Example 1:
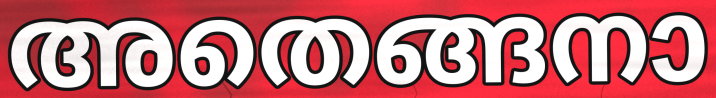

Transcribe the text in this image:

അതെങ്ങനാ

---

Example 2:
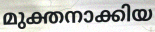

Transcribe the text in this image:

മുക്തനാക്കിയ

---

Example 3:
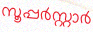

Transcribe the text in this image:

സൂപ്പർസ്റ്റാർ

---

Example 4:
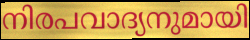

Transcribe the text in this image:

നിരപവാദ്യനുമായി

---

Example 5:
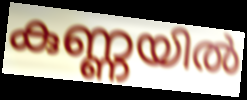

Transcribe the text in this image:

കുണ്ണയിൽ